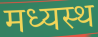
मध्यस्थ